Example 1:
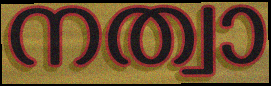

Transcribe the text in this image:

നത്വാ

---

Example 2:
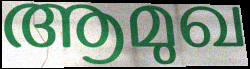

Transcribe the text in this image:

ആമുഖ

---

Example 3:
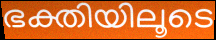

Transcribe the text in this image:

ഭക്തിയിലൂടെ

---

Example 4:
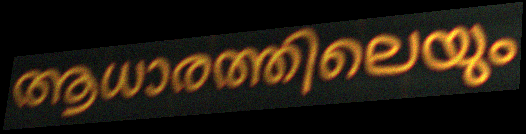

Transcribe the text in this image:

ആധാരത്തിലെയും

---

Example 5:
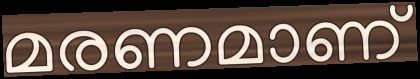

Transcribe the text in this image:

മരണമാണ്